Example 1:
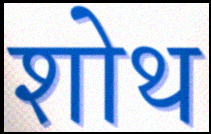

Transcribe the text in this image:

शोथ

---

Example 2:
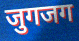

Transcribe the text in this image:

जुगजग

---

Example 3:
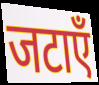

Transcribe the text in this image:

जटाएँ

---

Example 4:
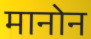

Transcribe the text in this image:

मानोन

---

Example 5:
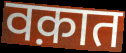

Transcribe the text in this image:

वक़ात